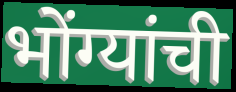
भोंग्यांची